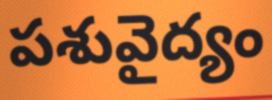
పశువైద్యం